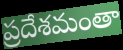
ప్రదేశమంతా